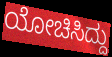
ಯೋಚಿಸಿದ್ದು